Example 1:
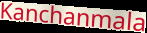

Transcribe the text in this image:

Kanchanmala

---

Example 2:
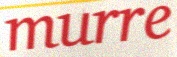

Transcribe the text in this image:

murre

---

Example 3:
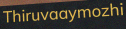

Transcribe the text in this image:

Thiruvaaymozhi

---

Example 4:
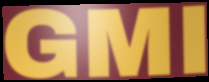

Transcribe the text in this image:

GMI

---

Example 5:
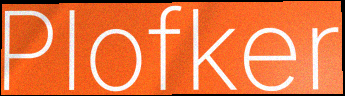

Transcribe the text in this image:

Plofker